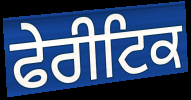
ਫੇਰੀਟਿਕ